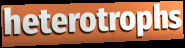
heterotrophs